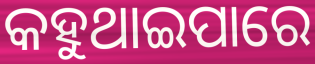
କହୁଥାଇପାରେ